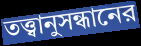
তত্ত্বানুসন্ধানের